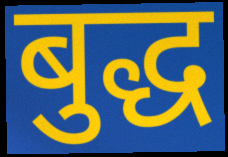
बुद्ध